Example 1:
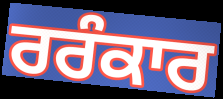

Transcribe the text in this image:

ਰਰੰਕਾਰ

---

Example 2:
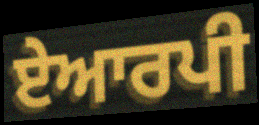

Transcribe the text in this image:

ਏਆਰਪੀ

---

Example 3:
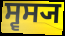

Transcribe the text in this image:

ਸ੍ਵਸ੍ਯ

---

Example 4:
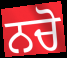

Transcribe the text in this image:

ਨਚੋ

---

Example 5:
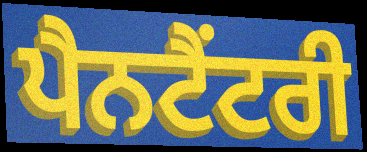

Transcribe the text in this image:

ਪੈਨਟੈਂਟਰੀ